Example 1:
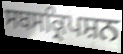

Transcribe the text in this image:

ਸਬਸਕ੍ਰਿਪਸ਼ਨ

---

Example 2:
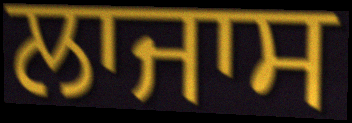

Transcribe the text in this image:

ਲਾਜਾਸ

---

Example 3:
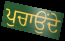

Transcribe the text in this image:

ਪੁਚਾਉਂਦੇ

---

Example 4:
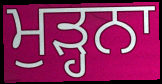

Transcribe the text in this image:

ਮੁੜ੍ਹਨਾ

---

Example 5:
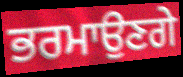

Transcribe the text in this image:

ਭਰਮਾਉਣਗੇ